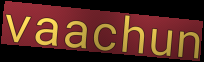
vaachun